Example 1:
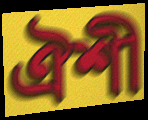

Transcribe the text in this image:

ঐশী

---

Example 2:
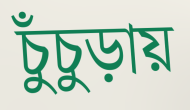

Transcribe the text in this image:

চুঁচুড়ায়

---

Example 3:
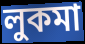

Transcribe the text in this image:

লুকমা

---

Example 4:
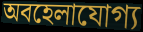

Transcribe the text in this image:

অবহেলাযোগ্য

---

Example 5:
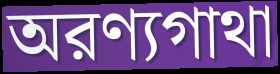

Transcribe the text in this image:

অরণ্যগাথা